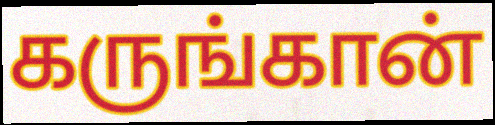
கருங்கான்